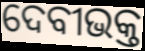
ଦେବୀଭକ୍ତ